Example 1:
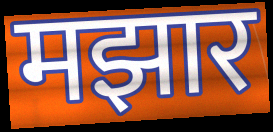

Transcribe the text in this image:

मझार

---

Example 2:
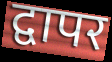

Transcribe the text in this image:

द्वापर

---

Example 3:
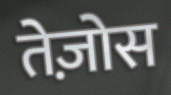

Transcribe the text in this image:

तेज़ोस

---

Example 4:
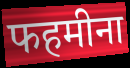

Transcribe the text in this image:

फहमीना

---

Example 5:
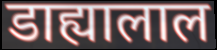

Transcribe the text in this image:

डाह्यालाल